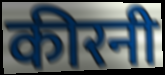
कीरनी